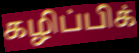
கழிப்பிக்